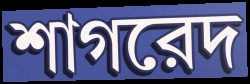
শাগরেদ